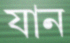
যান